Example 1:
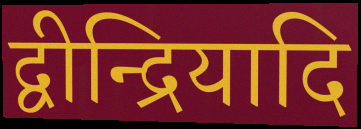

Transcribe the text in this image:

द्वीन्द्रियादि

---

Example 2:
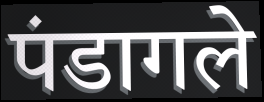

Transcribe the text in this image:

पंडागले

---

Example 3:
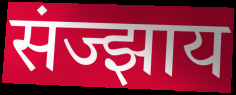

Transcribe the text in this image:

संज्झाय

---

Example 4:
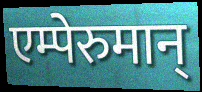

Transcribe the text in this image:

एम्पेरुमान्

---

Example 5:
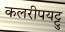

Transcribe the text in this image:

कलरीपयट्टु